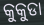
କୁକୁଡା